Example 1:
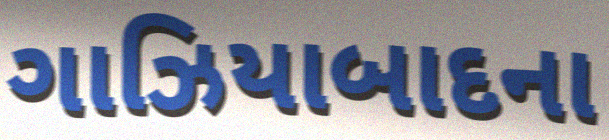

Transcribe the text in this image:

ગાઝિયાબાદના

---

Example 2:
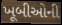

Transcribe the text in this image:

ખૂબીઓની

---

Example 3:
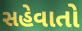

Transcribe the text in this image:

સહેવાતો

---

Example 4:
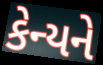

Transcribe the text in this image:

કેન્યને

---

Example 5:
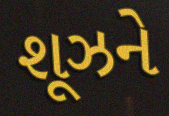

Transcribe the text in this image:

શૂઝને